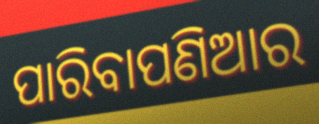
ପାରିବାପଣିଆର